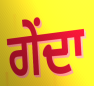
ਗੇਂਦਾ